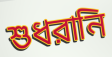
শুধরানি